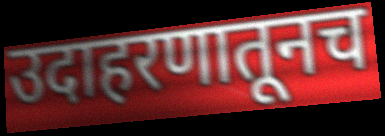
उदाहरणातूनच